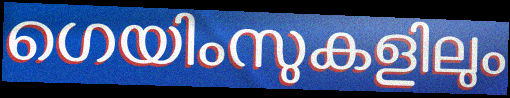
ഗെയിംസുകളിലും